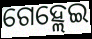
ଗେହ୍ଲେଇ